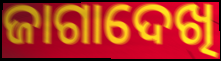
ଜାଗାଦେଖି